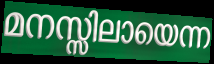
മനസ്സിലായെന്ന